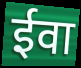
ईवा